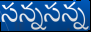
సన్నసన్న